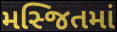
મસ્જિતમાં